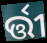
ର୍ତ୍ତୀ